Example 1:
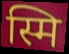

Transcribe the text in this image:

स्मि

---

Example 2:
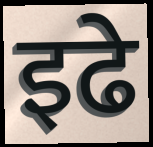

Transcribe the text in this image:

इढे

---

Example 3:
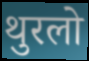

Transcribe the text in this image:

थुरलो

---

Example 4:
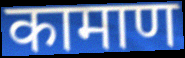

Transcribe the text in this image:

कामाण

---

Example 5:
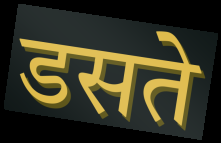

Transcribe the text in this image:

डसते